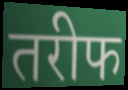
तरीफ